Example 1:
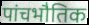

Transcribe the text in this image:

पांचभौतिक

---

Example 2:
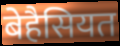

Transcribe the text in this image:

बेहैसियत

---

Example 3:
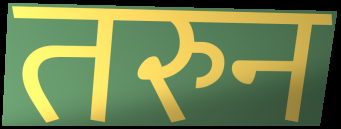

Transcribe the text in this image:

तरुन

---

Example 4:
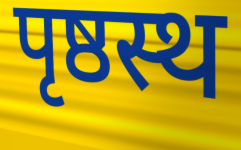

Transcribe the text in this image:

पृष्ठस्थ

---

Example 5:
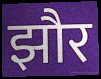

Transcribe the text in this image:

झौर